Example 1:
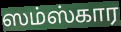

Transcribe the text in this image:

ஸம்ஸ்கார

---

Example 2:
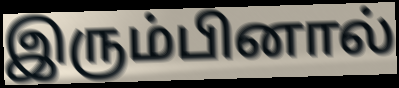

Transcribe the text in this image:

இரும்பினால்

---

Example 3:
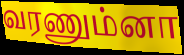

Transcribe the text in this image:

வரணும்னா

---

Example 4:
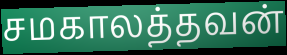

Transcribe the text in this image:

சமகாலத்தவன்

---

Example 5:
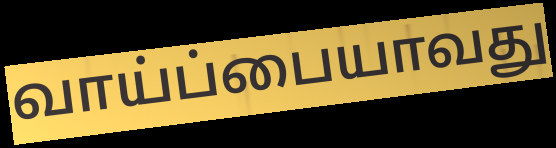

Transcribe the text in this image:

வாய்ப்பையாவது